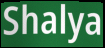
Shalya